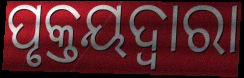
ପୃକ୍ତୟଦ୍ଵାରା